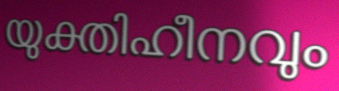
യുക്തിഹീനവും